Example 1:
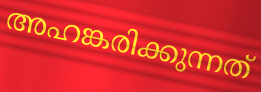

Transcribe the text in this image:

അഹങ്കരിക്കുന്നത്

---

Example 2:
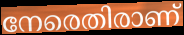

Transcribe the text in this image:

നേരെതിരാണ്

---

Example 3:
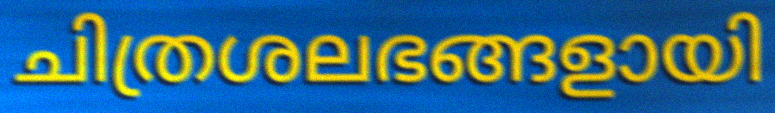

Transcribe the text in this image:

ചിത്രശലഭങ്ങളായി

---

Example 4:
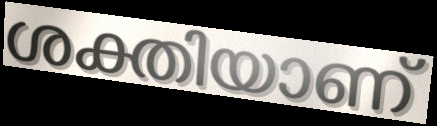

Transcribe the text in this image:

ശക്തിയാണ്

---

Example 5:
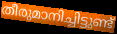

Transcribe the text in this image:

തീരുമാനിച്ചിട്ടുണ്ട്